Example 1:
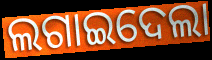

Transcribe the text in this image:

ଲଗାଇଦେଲା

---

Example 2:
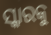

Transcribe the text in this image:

ସ୍କାରକୁ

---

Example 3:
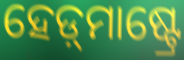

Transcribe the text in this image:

ହେଡ଼୍‌ମାଷ୍ଟ୍ରେ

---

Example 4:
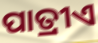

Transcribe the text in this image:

ପାତ୍ରୀଏ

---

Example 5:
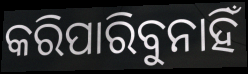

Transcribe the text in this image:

କରିପାରିବୁନାହିଁ